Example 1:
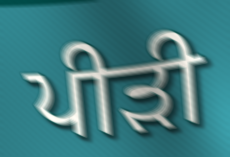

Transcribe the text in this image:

ਪੀੜੀ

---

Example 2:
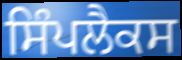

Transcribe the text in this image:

ਸਿੰਪਲੈਕਸ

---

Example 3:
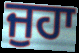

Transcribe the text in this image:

ਜੁਹਾ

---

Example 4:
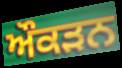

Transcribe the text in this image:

ਔਕੜਨ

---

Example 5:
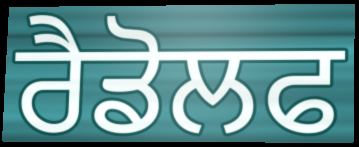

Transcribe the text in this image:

ਰੈਡੋਲਫ